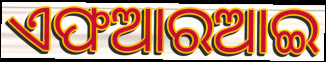
ଏଫଆରଆଇ